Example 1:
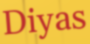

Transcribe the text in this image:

Diyas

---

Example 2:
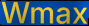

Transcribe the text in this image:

Wmax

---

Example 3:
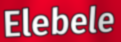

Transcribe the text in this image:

Elebele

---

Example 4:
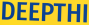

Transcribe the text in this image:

DEEPTHI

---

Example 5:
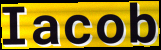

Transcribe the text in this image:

Iacob